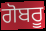
ਗੋਬਰੂ